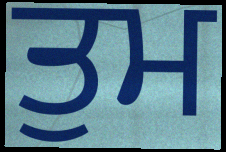
ਤੁਮ